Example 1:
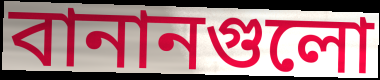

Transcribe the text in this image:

বানানগুলো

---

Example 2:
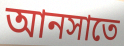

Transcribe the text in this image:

আনসাতে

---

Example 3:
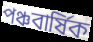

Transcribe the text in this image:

পঞ্চবার্ষিক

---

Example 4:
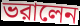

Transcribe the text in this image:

ভরালেন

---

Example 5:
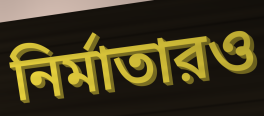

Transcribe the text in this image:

নির্মাতারও